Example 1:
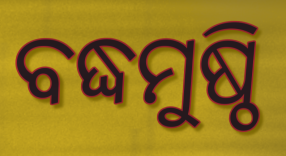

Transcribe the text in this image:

ବଦ୍ଧମୁଷ୍ଠି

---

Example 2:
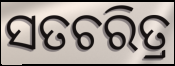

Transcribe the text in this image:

ସତଚରିତ୍ର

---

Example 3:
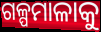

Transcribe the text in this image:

ଗଳ୍ପମାଳାକୁ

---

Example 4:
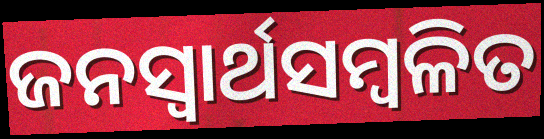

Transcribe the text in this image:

ଜନସ୍ବାର୍ଥସମ୍ବଳିତ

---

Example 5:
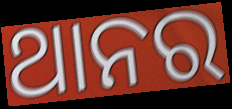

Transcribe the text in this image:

ଥାନର